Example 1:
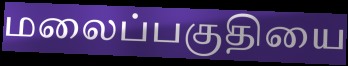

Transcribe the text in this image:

மலைப்பகுதியை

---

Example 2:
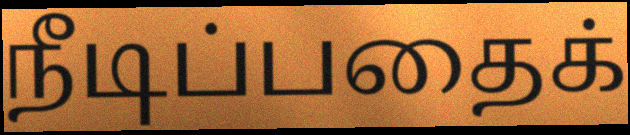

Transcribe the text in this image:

நீடிப்பதைக்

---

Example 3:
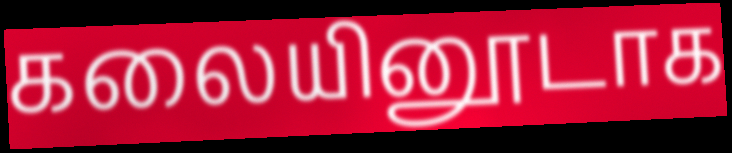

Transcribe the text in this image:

கலையினூடாக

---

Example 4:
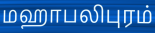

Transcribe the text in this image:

மஹாபலிபுரம்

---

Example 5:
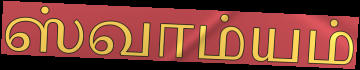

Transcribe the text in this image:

ஸ்வாம்யம்